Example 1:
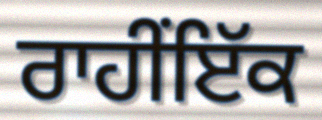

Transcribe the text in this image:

ਰਾਹੀਂਇੱਕ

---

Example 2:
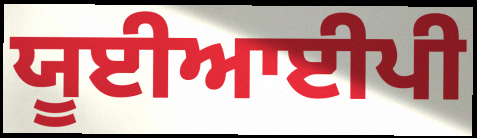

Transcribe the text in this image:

ਯੂਈਆਈਪੀ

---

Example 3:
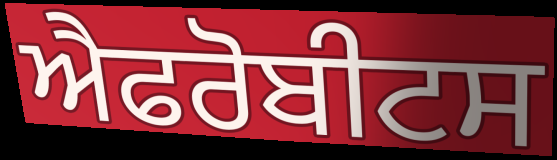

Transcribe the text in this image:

ਐਫਰੋਬੀਟਸ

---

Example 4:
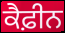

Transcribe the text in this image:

ਕੈਫ਼ੀਨ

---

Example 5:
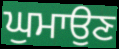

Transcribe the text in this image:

ਘੁਮਾਉਣ